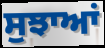
ਸੁਝਾਆਂ